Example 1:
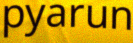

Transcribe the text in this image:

pyarun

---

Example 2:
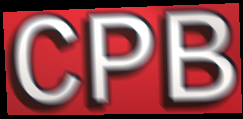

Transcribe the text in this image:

CPB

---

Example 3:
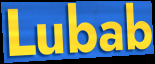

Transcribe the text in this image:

Lubab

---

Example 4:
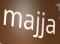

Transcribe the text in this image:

majja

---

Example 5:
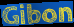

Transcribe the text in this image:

Gibon